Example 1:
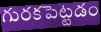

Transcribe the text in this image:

గురకపెట్టడం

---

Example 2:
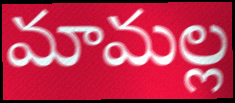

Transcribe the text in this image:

మామల్ల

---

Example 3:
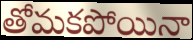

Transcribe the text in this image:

తోమకపోయినా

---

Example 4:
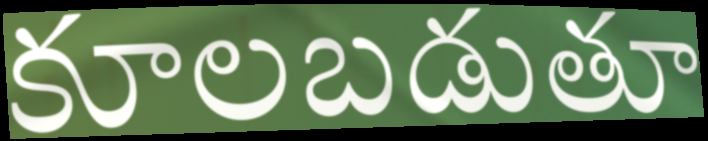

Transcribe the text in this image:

కూలబడుతూ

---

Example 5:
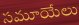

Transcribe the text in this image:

సమూయేలు